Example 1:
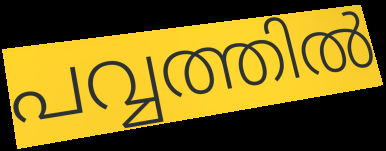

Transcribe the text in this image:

പവ്വത്തിൽ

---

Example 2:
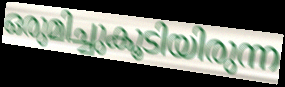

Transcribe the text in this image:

ഒരുമിച്ചുകൂടിയിരുന്ന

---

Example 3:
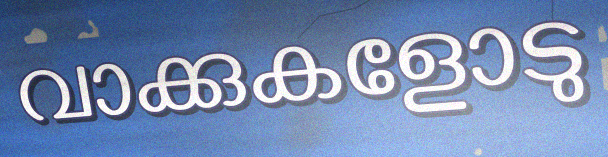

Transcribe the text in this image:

വാക്കുകളോടു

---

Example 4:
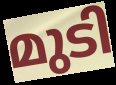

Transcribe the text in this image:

മുടി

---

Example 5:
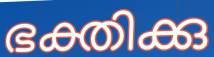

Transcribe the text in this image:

ഭക്തിക്കു